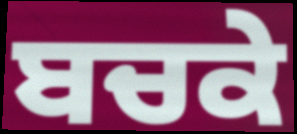
ਬਚਕੇ